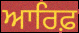
ਆਰਿਫ਼